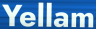
Yellam